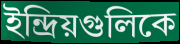
ইন্দ্রিয়গুলিকে